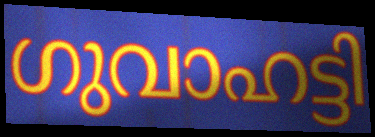
ഗുവാഹട്ടി